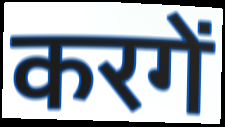
करगें